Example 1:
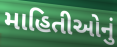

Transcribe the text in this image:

માહિતીઓનું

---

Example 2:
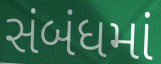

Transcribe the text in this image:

સંબંધમાં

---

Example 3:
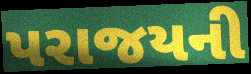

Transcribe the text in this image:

પરાજયની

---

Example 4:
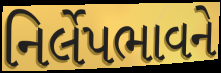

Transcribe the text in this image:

નિર્લેપભાવને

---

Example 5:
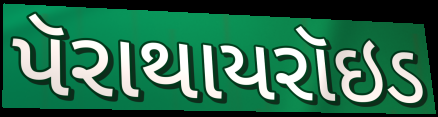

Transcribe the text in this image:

પૅરાથાયરૉઇડ